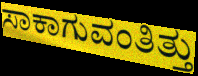
ಸಾಕಾಗುವಂತಿತ್ತು